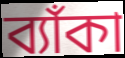
ব্যাঁকা